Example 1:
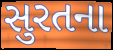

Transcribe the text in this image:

સુરતના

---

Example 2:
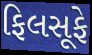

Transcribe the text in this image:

ફિલસૂફે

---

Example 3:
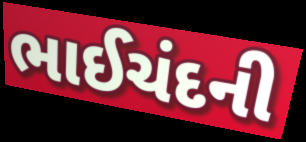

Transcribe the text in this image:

ભાઈચંદની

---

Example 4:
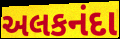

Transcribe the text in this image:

અલકનંદા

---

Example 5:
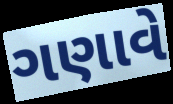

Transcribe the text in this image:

ગણાવે